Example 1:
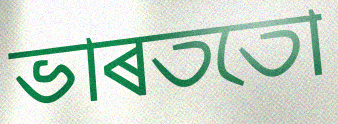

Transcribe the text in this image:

ভাৰততো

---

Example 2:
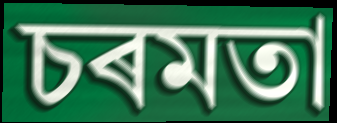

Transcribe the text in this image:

চৰমতা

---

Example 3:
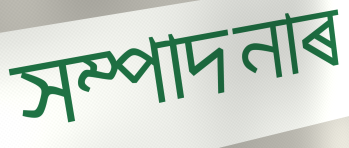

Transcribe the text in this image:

সম্পাদনাৰ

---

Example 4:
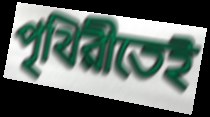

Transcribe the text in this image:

পৃথিৱীতেই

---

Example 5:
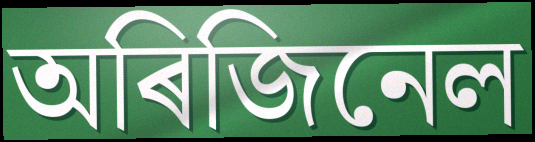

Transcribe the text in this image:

অৰিজিনেল